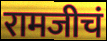
रामजीचं